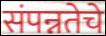
संपन्नतेचे